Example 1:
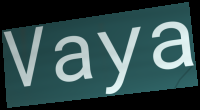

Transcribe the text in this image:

Vaya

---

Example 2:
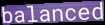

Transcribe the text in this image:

balanced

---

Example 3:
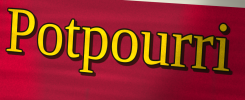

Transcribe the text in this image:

Potpourri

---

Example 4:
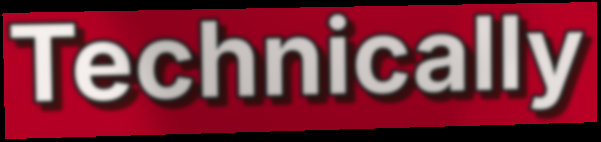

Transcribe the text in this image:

Technically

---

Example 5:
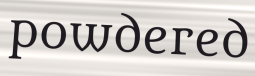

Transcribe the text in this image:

powdered